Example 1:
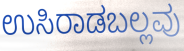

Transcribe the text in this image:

ಉಸಿರಾಡಬಲ್ಲವು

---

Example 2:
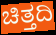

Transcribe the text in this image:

ಚಿತ್ತದಿ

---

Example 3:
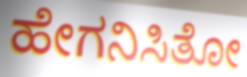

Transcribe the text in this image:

ಹೇಗನಿಸಿತೋ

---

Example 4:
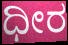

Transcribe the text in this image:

ಧೀರ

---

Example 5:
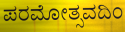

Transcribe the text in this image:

ಪರಮೋತ್ಸವದಿಂ